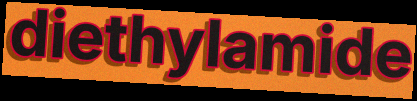
diethylamide